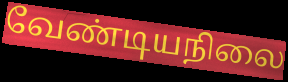
வேண்டியநிலை